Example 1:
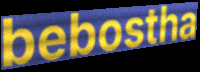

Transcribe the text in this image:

bebostha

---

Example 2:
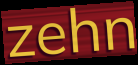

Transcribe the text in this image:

zehn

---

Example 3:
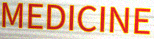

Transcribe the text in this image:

MEDICINE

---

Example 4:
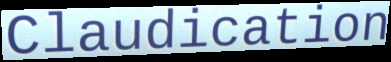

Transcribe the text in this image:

Claudication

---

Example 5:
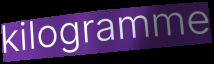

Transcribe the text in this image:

kilogramme